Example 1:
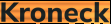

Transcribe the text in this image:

Kroneck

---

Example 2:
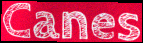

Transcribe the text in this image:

Canes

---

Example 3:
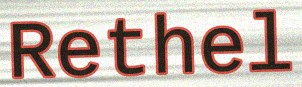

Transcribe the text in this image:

Rethel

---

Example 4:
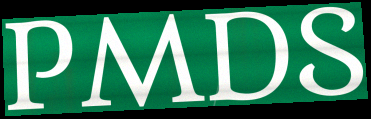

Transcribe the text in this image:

PMDS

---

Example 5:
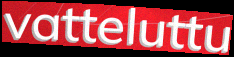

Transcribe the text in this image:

vatteluttu